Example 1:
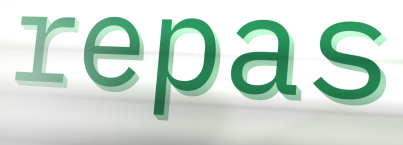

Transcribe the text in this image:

repas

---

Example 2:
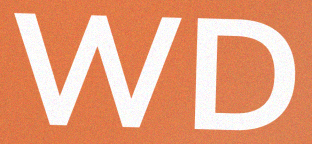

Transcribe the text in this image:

WD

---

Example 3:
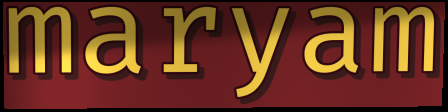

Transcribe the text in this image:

maryam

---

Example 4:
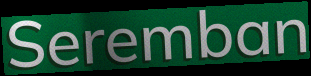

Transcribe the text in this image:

Seremban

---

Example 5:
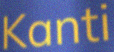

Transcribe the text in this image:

Kanti